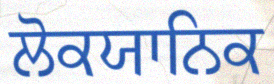
ਲੋਕਯਾਨਿਕ